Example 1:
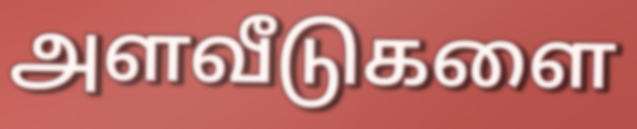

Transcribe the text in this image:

அளவீடுகளை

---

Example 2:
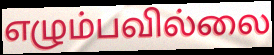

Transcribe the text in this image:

எழும்பவில்லை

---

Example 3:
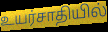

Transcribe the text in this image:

உயர்சாதியில்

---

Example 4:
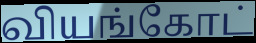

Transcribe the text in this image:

வியங்கோட்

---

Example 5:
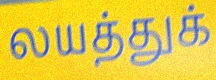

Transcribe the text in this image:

லயத்துக்